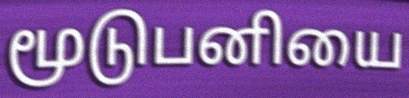
மூடுபனியை